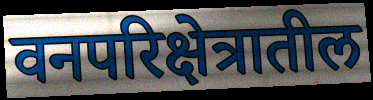
वनपरिक्षेत्रातील